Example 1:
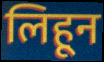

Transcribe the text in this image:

लिहून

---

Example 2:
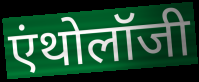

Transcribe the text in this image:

एंथोलॉजी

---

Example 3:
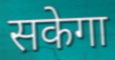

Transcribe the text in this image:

सकेगा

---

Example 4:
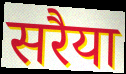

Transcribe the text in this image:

सरैया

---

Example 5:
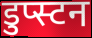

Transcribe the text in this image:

डुप्स्टन